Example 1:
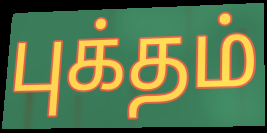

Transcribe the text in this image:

புக்தம்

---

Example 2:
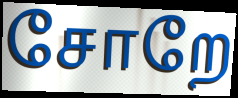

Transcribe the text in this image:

சோறே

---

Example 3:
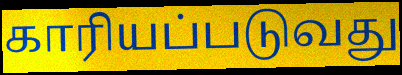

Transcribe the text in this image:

காரியப்படுவது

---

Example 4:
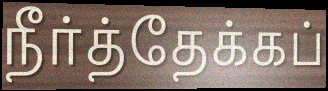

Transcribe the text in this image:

நீர்த்தேக்கப்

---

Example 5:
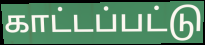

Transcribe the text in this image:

காட்டப்பட்டு